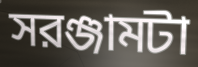
সরঞ্জামটা